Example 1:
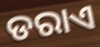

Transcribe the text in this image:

ଡରାଏ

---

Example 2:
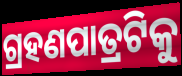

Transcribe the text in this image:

ଗ୍ରହଣପାତ୍ରଟିକୁ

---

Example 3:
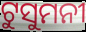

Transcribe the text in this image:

ଟୁସୁମନୀ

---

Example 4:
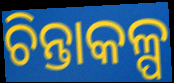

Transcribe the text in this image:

ଚିନ୍ତାକଳ୍ପ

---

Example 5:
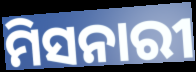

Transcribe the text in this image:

ମିସନାରୀ